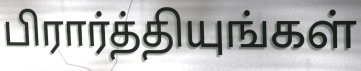
பிரார்த்தியுங்கள்